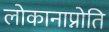
लोकानाप्नोति